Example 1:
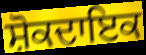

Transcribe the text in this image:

ਸ਼ੋਕਦਾਇਕ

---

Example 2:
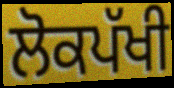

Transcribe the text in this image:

ਲੋਕਪੱਖੀ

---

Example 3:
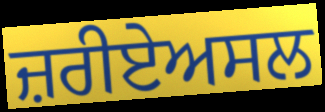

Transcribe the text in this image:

ਜ਼ਰੀਏਅਸਲ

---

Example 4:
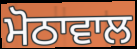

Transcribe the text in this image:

ਮੋਠਾਵਾਲ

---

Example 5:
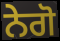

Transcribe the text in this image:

ਨੇਗੋ